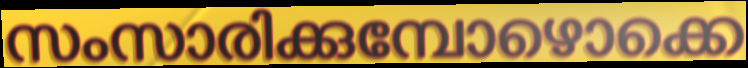
സംസാരിക്കുമ്പോഴൊക്കെ